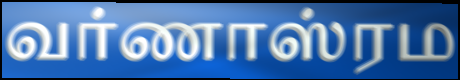
வர்ணாஸ்ரம